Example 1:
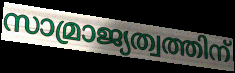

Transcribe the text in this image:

സാമ്രാജ്യത്വത്തിന്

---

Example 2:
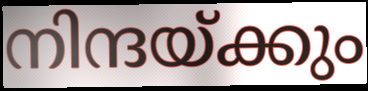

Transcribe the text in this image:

നിന്ദയ്ക്കും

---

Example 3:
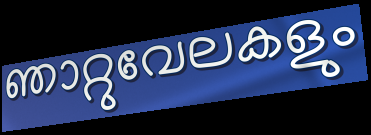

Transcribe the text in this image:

ഞാറ്റുവേലകളും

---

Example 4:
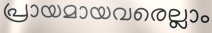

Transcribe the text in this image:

പ്രായമായവരെല്ലാം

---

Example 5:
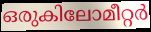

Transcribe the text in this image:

ഒരുകിലോമീറ്റർ